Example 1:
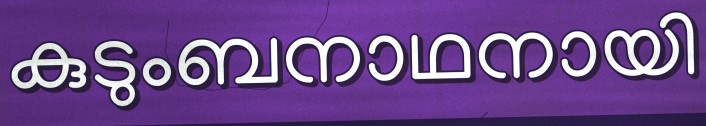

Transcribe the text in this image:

കുടുംബനാഥനായി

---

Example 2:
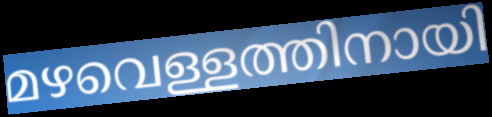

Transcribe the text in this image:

മഴവെള്ളത്തിനായി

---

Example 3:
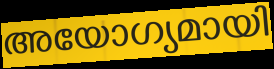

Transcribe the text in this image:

അയോഗ്യമായി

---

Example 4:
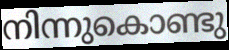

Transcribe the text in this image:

നിന്നുകൊണ്ടു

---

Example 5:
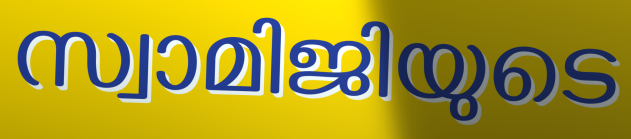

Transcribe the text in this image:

സ്വാമിജിയുടെ